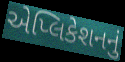
એપ્લિકેશનનું